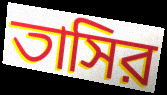
তাসির